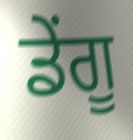
ਡੇਂਗੂ